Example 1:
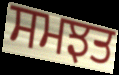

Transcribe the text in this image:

ਸਮਝਤ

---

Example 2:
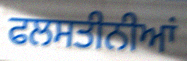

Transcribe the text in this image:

ਫਲਸਤੀਨੀਆਂ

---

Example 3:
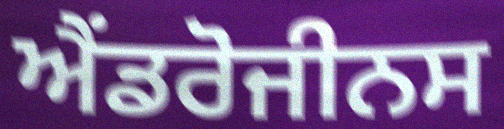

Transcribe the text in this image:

ਐਂਡਰੋਜੀਨਸ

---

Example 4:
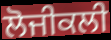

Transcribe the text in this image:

ਲੋਜੀਕਲੀ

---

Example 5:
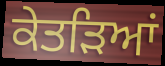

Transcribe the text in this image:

ਕੇਤੜਿਆਂ